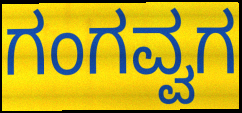
ಗಂಗವ್ವಗ